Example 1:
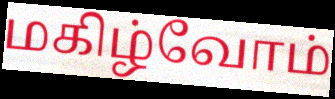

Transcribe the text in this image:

மகிழ்வோம்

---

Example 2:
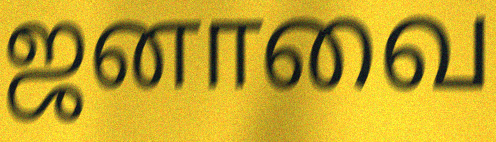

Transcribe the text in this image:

ஜனாவை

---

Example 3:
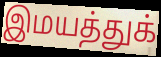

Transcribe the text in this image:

இமயத்துக்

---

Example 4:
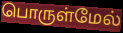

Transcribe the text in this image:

பொருள்மேல்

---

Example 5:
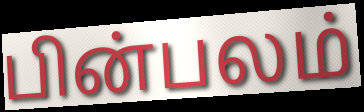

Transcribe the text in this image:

பின்பலம்